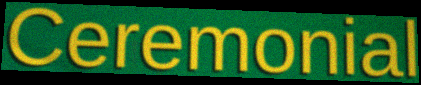
Ceremonial